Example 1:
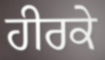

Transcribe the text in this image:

ਹੀਰਕੇ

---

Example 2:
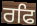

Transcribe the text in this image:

ਰਫਿ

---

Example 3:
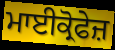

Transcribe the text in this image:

ਮਾਈਕ੍ਰੋਫੇਜ਼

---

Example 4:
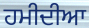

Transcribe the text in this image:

ਹਮੀਦੀਆ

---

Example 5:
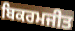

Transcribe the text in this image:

ਬਿਕਰਮਜੀਤ